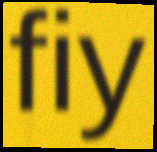
fiy